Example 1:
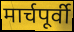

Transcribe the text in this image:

मार्चपूर्वी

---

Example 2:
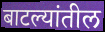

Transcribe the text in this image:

बाटल्यांतील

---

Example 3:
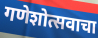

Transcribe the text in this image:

गणेशोत्सवाचा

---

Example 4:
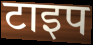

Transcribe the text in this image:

टाइप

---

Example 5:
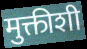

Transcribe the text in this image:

मुक्तीशी